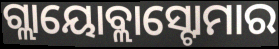
ଗ୍ଲାୟୋବ୍ଲାସ୍ଟୋମାର